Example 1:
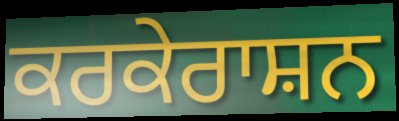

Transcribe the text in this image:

ਕਰਕੇਰਾਸ਼ਨ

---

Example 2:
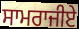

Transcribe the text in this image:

ਸਾਮਰਾਜੀਏ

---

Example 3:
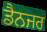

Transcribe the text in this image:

ਡੈਨਜਰ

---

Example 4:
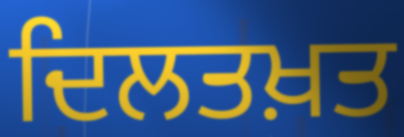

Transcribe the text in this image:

ਦਿਲਤਖ਼ਤ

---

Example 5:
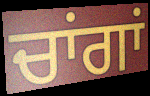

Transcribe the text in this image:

ਚਾਂਗਾਂ